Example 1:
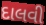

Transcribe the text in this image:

દાલવી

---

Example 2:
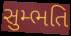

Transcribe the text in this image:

સુમ્ભતિ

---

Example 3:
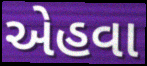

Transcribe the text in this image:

એહવા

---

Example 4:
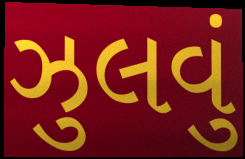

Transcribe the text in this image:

ઝુલવું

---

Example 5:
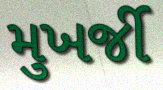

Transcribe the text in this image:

મુખર્જી